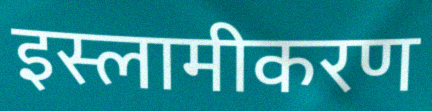
इस्लामीकरण